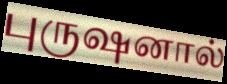
புருஷனால்